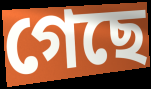
গেছে